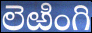
లెఱింగి